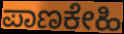
ಪಾಣಕೇಹಿ